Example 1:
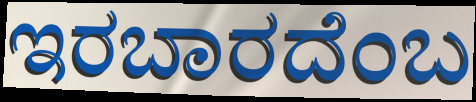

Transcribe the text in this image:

ಇರಬಾರದೆಂಬ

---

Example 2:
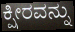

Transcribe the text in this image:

ಕ್ಷೀರವನ್ನು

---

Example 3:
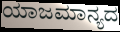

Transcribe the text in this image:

ಯಾಜಮಾನ್ಯದ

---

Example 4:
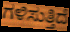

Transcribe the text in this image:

ಗಳಿಸುತ್ತಿದೆ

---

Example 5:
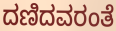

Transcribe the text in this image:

ದಣಿದವರಂತೆ